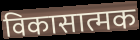
विकासात्मक